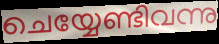
ചെയ്യേണ്ടിവന്നു